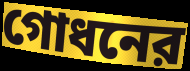
গোধনের